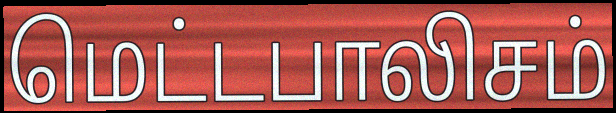
மெட்டபாலிசம்